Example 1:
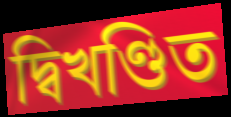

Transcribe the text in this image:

দ্বিখণ্ডিত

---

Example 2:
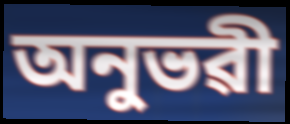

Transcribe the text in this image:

অনুভৱী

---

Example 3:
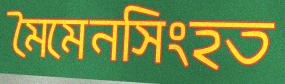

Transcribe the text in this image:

মৈমেনসিংহত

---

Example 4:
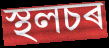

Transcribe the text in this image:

স্থলচৰ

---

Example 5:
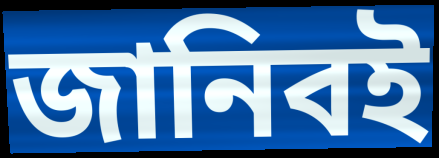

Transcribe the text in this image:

জানিবই